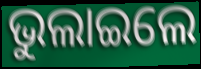
ଭୁଲାଇଲେ